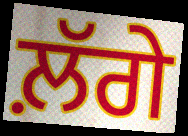
ਲ਼ੱਗੇ